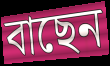
বাছেন